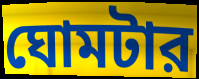
ঘোমটার